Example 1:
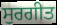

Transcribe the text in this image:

ਸੁਰਗੀਤ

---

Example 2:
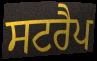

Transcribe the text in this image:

ਸਟਰੈਪ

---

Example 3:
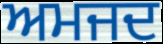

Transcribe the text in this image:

ਅਮਜਦ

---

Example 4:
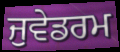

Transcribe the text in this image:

ਜੁਵੇਡਰਮ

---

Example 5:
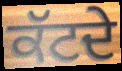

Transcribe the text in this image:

ਕੱਟਦੇ